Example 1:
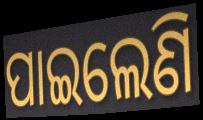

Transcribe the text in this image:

ପାଇଲେଣି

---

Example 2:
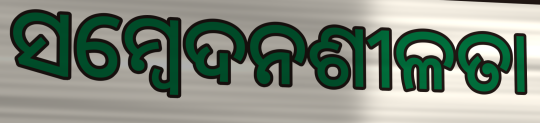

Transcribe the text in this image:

ସମ୍ଵେଦନଶୀଳତା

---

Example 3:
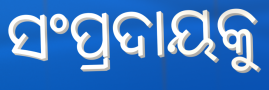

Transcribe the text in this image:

ସଂପ୍ରଦାୟକୁ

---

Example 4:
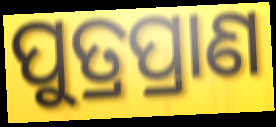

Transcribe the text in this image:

ପୁତ୍ରପ୍ରାଣ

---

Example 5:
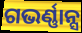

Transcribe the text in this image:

ଗଭର୍ଣ୍ଣାନ୍ସ